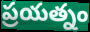
ప్రయత్నం